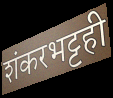
शंकरभट्टही